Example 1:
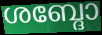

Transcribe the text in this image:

ശബ്ദോ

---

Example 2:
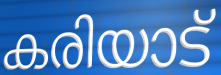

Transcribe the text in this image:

കരിയാട്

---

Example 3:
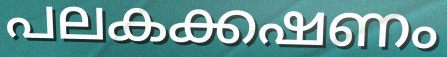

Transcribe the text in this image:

പലകക്കഷണം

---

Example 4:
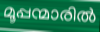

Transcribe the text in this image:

മൂപ്പന്മാരിൽ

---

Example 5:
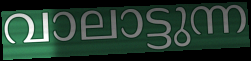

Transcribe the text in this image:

വാലാട്ടുന്ന